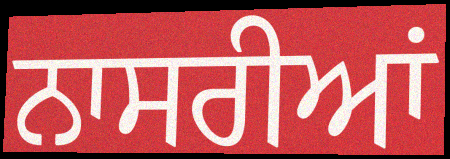
ਨਾਸਰੀਆਂ